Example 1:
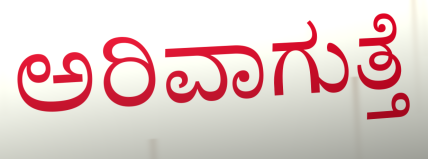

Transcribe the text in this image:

ಅರಿವಾಗುತ್ತೆ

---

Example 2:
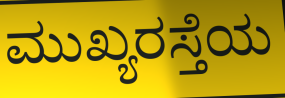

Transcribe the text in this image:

ಮುಖ್ಯರಸ್ತೆಯ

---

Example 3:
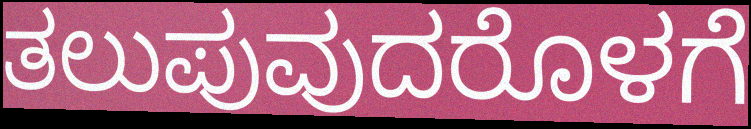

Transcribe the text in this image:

ತಲುಪುವುದರೊಳಗೆ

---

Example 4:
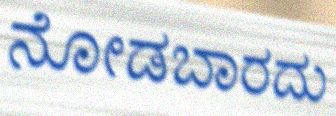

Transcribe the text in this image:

ನೋಡಬಾರದು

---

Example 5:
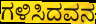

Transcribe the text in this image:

ಗಳಿಸಿದವನ